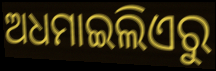
ଅଧମାଇଲିଏରୁ